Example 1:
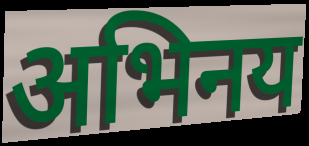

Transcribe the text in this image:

अभिनय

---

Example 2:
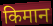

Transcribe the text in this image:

किमान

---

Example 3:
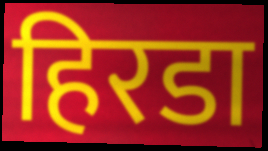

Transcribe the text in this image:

हिरडा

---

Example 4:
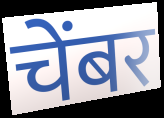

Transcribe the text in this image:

चेंबर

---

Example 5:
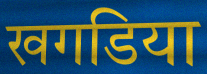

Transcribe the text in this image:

खगडिया